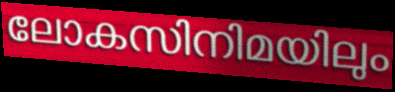
ലോകസിനിമയിലും